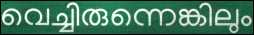
വെച്ചിരുന്നെങ്കിലും